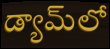
డ్యామ్‌లో